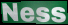
Ness